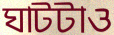
ঘাটটাও